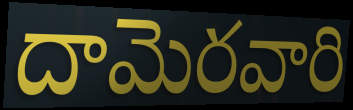
దామెరవారి